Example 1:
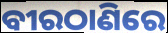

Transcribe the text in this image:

ବୀରଠାଣିରେ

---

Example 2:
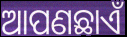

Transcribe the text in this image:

ଆପଣଛାଏଁ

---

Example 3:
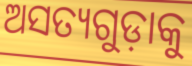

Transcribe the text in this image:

ଅସତ୍ୟଗୁଡ଼ାକୁ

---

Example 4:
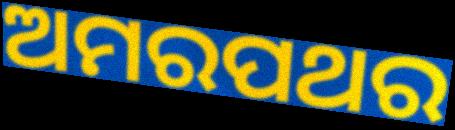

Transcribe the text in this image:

ଅମରପଥର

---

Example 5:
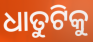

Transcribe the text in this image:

ଧାତୁଟିକୁ